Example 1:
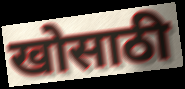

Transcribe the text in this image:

खोसाठी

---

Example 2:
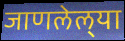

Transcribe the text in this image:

जाणलेल्या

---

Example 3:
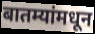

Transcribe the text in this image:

बातम्यांमधून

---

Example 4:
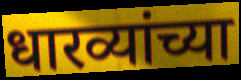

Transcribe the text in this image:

धारव्यांच्या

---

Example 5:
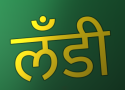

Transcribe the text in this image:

लँडी